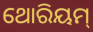
ଥୋରିୟମ୍